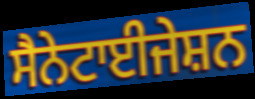
ਸੈਨੇਟਾਈਜੇਸ਼ਨ